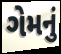
ગેમનું